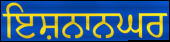
ਇਸ਼ਨਾਨਘਰ